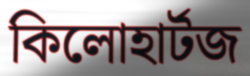
কিলোহার্টজ